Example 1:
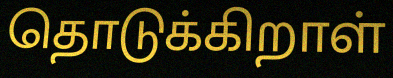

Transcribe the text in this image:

தொடுக்கிறாள்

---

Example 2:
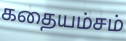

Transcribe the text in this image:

கதையம்சம்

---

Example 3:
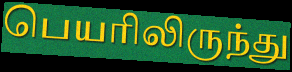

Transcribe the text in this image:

பெயரிலிருந்து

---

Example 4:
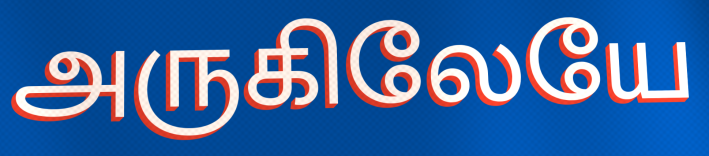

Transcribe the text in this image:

அருகிலேயே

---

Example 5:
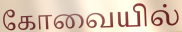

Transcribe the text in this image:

கோவையில்